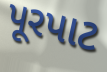
પૂરપાટ